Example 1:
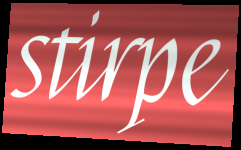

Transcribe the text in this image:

stirpe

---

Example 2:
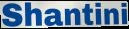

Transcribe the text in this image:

Shantini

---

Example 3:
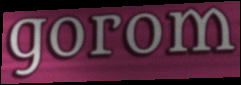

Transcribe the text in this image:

gorom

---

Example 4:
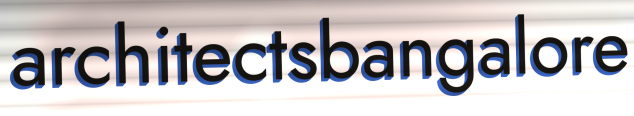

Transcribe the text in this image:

architectsbangalore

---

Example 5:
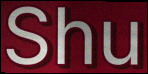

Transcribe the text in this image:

Shu